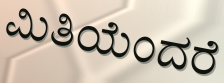
ಮಿತಿಯೆಂದರೆ